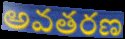
అవతరణ